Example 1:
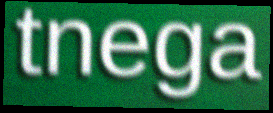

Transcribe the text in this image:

tnega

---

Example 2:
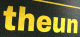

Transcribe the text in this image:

theun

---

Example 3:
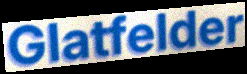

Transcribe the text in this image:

Glatfelder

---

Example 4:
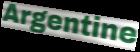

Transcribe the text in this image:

Argentine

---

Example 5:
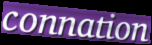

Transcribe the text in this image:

connation